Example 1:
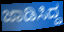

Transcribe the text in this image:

ಜಾಡಿಸಿದ್ದ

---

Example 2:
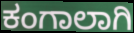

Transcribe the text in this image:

ಕಂಗಾಲಾಗಿ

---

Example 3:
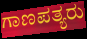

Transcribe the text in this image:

ಗಾಣಪತ್ಯರು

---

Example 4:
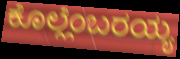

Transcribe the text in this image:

ಕೊಲ್ಲೆಂಬರಯ್ಯ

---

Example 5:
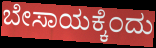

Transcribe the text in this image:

ಬೇಸಾಯಕ್ಕೆಂದು